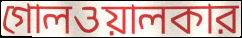
গোলওয়ালকার